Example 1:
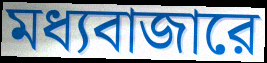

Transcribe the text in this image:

মধ্যবাজারে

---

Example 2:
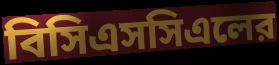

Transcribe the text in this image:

বিসিএসসিএলের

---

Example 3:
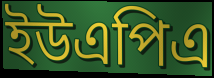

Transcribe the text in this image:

ইউএপিএ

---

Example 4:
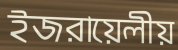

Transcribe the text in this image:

ইজরায়েলীয়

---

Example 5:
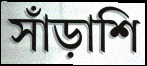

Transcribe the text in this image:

সাঁড়াশি